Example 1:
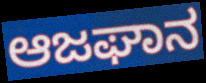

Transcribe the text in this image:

ಆಜಘಾನ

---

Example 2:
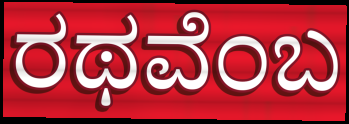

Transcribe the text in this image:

ರಥವೆಂಬ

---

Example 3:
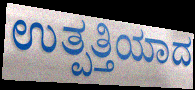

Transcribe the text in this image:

ಉತ್ಪತ್ತಿಯಾದ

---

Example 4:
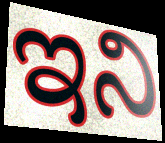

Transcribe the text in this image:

ಇನಿ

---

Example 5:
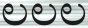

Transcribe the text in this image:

ಲಲಲ